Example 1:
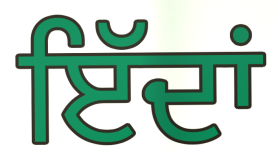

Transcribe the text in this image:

ਇੱਦਾਂ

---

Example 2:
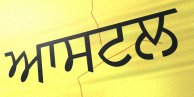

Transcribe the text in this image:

ਆਸਟਲ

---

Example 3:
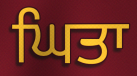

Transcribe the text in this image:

ਘਿਤਾ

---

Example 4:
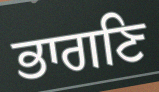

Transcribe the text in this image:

ਭਾਗਣਿ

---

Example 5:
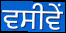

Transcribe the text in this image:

ਵਸੀਵੇਂ